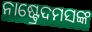
ନାଷ୍ଟ୍ରେଦମସଙ୍କ